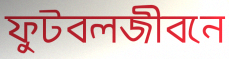
ফুটবলজীবনে